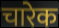
चारेक